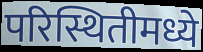
परिस्थितीमध्ये